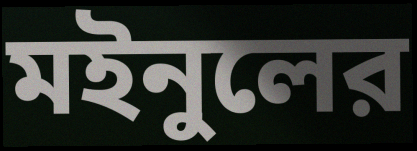
মইনুলের